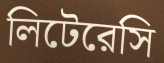
লিটেরেসি